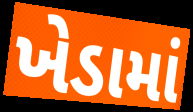
ખેડામાં